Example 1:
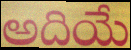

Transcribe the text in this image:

అదియే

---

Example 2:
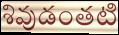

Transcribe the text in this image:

శివుడంతటి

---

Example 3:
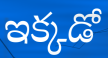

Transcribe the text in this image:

ఇక్కడో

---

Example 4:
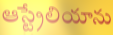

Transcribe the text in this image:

ఆస్ట్రేలియాను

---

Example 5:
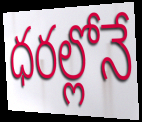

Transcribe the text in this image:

ధరల్లోనే